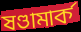
ষণ্ডামার্ক